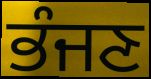
ਭੰਜਣ